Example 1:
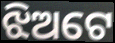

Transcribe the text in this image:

ଝିଅଟେ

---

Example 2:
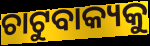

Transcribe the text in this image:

ଚାଟୁବାକ୍ୟକୁ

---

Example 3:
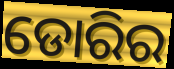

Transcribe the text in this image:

ଡୋରିର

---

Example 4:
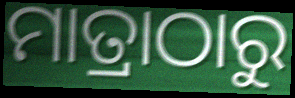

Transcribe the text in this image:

ମାତ୍ରାଠାରୁ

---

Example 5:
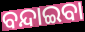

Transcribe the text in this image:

ବନ୍ଦାଇବା